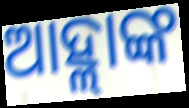
ଆହ୍ଲାଙ୍କ